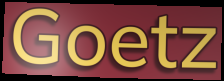
Goetz